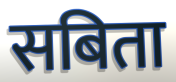
सबिता